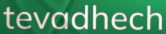
tevadhech